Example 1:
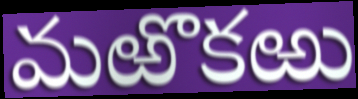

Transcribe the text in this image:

మఱొకఱు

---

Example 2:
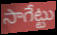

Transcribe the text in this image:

సాగేట్టు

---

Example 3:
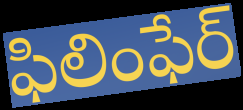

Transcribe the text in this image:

ఫిలింఫేర్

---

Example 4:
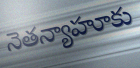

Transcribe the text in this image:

నెతన్యాహూకు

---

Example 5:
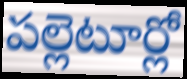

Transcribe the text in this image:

పల్లెటూర్లో